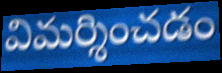
విమర్శించడం